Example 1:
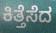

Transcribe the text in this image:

ಕಿತ್ತೆಸೆದ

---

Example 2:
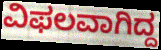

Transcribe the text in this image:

ವಿಫಲವಾಗಿದ್ದ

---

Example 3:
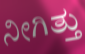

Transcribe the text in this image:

ನೀಗಿತ್ತು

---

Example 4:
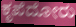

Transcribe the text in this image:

ಕೃಪೆದೋರು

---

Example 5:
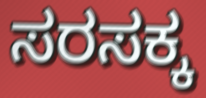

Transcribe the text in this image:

ಸರಸಕ್ಕ